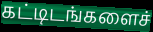
கட்டிடங்களைச்